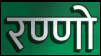
रण्णो